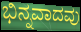
ಭಿನ್ನವಾದವು